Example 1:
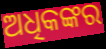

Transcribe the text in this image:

ଅଧିକଙ୍କର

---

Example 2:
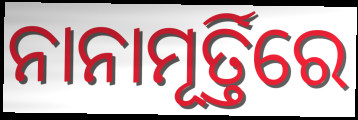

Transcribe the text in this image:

ନାନାମୂର୍ତ୍ତିରେ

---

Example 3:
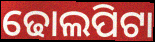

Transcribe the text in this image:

ଢୋଲପିଟା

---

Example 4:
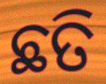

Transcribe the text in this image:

ଛତି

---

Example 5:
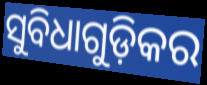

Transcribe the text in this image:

ସୁବିଧାଗୁଡ଼ିକର